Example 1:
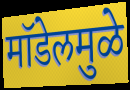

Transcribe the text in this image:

मॉडेलमुळे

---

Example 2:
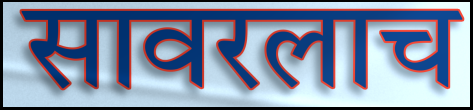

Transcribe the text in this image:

सावरलाच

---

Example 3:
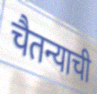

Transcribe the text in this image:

चैतन्याची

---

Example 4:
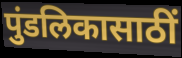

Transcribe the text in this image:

पुंडलिकासाठीं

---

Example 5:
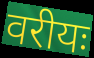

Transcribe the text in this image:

वरीयः